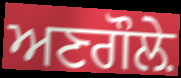
ਅਣਗੌਲ਼ੇ